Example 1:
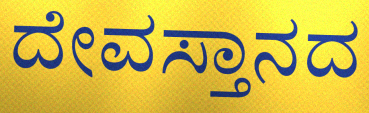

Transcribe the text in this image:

ದೇವಸ್ತಾನದ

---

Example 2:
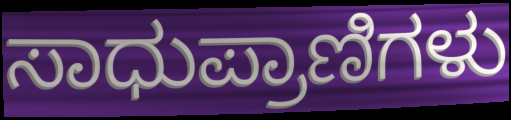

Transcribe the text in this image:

ಸಾಧುಪ್ರಾಣಿಗಳು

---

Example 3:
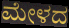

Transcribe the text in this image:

ಮೇಳದ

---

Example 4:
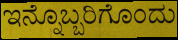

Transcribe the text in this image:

ಇನ್ನೊಬ್ಬರಿಗೊಂದು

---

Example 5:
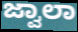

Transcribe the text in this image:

ಜ್ವಾಲಾ